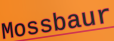
Mossbaur